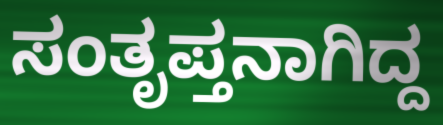
ಸಂತೃಪ್ತನಾಗಿದ್ದ